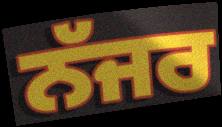
ਨੱਜਰ